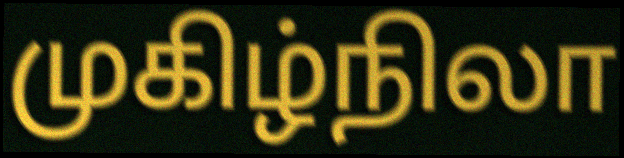
முகிழ்நிலா